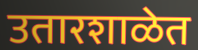
उतारशाळेत